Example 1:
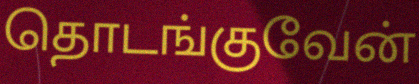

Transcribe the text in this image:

தொடங்குவேன்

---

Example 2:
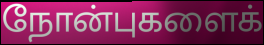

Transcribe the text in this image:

நோன்புகளைக்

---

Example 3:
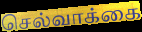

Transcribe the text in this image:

செல்வாக்கை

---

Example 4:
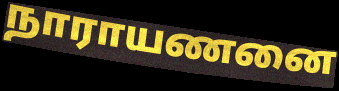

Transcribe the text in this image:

நாராயணனை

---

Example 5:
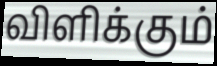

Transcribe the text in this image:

விளிக்கும்